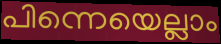
പിന്നെയെല്ലാം